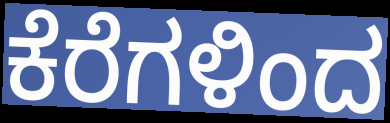
ಕೆರೆಗಳಿಂದ